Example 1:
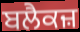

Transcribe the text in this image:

ਬਲੈਕਜ਼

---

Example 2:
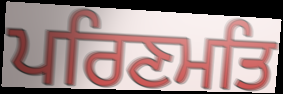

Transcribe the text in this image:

ਪਰਿਣਮਤਿ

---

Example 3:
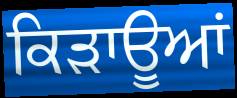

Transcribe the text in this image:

ਕਿੜਾਊਆਂ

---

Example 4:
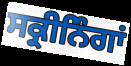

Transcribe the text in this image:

ਸਕ੍ਰੀਨਿੰਗਾਂ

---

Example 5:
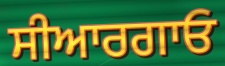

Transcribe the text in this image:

ਸੀਆਰਗਾਓ